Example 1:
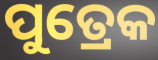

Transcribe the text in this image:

ପୁତ୍ରେକ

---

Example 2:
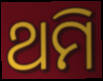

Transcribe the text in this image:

ଥମି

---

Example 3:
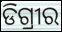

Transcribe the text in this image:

ଡିଗ୍ରୀର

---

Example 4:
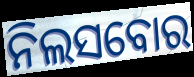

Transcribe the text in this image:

ନିଲସବୋର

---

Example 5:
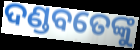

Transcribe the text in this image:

ଦଣ୍ଡବତେଙ୍କୁ